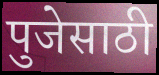
पुजेसाठी